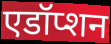
एडॉप्शन